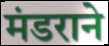
मंडराने